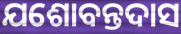
ଯଶୋବନ୍ତଦାସ